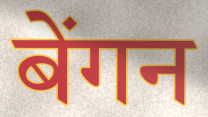
बेंगन